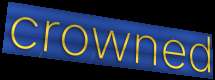
crowned